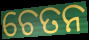
ଚେତନ